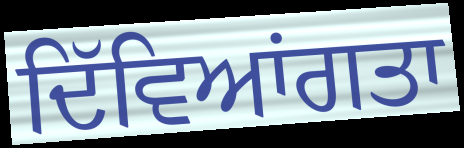
ਦਿੱਵਿਆਂਗਤਾ